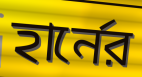
হার্নের